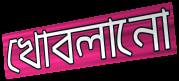
খোবলানো